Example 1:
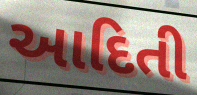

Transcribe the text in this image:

આદિતી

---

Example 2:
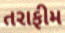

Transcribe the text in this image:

તરાફીમ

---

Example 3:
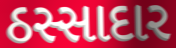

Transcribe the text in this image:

ઠસ્સાદાર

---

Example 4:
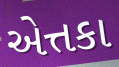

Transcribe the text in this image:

એત્તકા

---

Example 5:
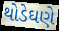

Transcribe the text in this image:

થોડેઘણે